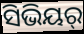
ସିଭିୟର୍